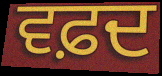
ਵਫ਼ਦ